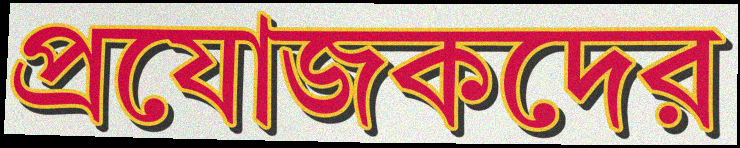
প্রযোজকদের